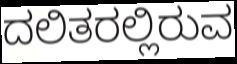
ದಲಿತರಲ್ಲಿರುವ